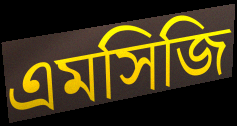
এমসিজি